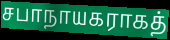
சபாநாயகராகத்